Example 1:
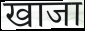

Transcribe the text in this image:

खाजा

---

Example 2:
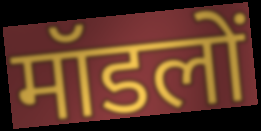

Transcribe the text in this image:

मॉडलों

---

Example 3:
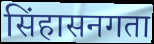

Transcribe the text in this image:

सिंहासनगता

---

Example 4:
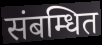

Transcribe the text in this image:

संबम्धित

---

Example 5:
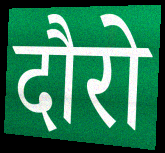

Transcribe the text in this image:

दौरो